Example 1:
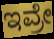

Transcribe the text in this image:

ಇವ್ರೇ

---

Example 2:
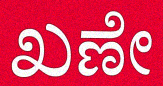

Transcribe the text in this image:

ಖಣೇ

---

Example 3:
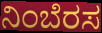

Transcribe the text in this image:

ನಿಂಬೆರಸ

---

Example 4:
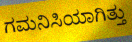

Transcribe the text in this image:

ಗಮನಿಸಿಯಾಗಿತ್ತು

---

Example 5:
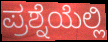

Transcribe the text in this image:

ಪ್ರಶ್ನೆಯೆಲ್ಲಿ